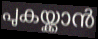
പുകയ്ക്കാൻ